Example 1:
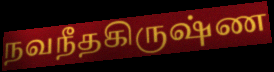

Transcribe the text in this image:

நவநீதகிருஷ்ண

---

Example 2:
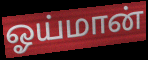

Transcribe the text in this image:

ஓய்மான்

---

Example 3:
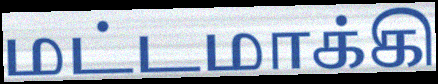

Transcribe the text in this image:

மட்டமாக்கி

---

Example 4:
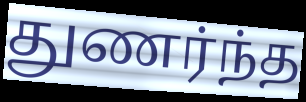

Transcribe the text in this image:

துணர்ந்த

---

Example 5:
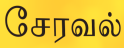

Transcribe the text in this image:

சேரவல்